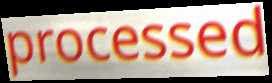
processed